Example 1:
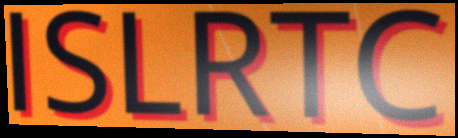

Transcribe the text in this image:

ISLRTC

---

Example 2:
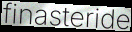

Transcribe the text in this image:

finasteride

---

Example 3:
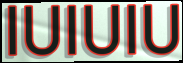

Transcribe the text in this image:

IUIUIU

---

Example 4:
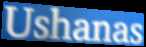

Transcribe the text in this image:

Ushanas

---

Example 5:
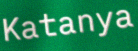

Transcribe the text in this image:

Katanya